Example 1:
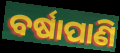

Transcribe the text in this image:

ବର୍ଷାପାଣି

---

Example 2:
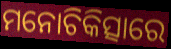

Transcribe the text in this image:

ମନୋଚିକିତ୍ସାରେ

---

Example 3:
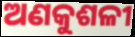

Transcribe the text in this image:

ଅଣକୁଶଳୀ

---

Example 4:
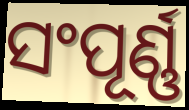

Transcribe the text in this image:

ସଂପୂର୍ଣ୍ଣ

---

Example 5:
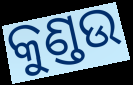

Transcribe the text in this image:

କୁଣ୍ଡଉ